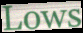
Lows